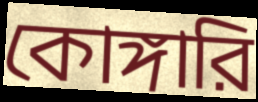
কোঙ্গারি